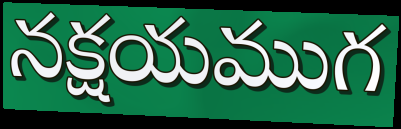
నక్షయముగ